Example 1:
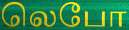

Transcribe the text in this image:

லெபோ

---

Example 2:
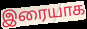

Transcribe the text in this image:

இரையாக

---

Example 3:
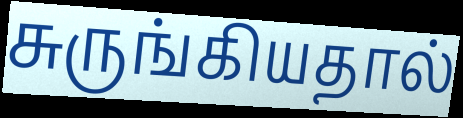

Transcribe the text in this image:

சுருங்கியதால்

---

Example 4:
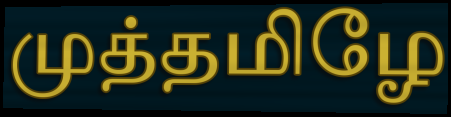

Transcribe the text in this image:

முத்தமிழே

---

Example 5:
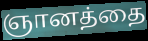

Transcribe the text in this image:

ஞானத்தை